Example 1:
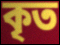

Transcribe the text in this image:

কৃত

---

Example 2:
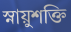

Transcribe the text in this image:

স্নায়ুশক্তি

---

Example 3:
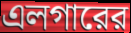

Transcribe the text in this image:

এলগারের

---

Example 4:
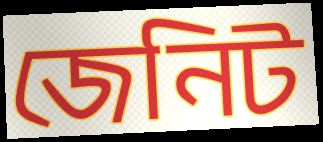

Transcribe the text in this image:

জেনিট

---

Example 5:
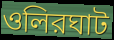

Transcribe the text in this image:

ওলিরঘাট